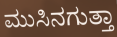
ಮುಸಿನಗುತ್ತಾ